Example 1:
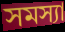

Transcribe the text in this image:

সমস্যা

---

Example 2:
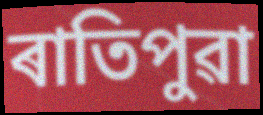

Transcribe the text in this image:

ৰাতিপুৱা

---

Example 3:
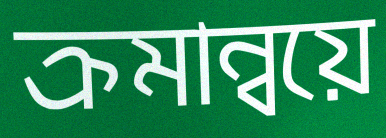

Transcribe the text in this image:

ক্ৰমান্বয়ে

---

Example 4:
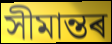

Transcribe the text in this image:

সীমান্তৰ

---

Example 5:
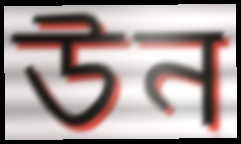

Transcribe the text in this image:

উন